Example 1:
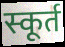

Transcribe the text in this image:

स्कूर्त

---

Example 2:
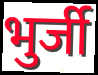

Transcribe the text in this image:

भुर्जी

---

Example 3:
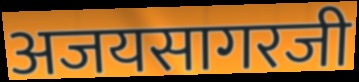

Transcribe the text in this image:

अजयसागरजी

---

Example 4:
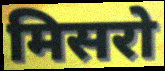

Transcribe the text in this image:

मिसरो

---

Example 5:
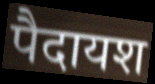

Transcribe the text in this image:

पैदायश